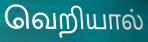
வெறியால்